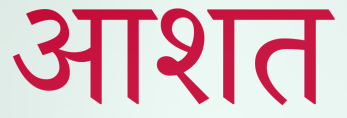
आशत